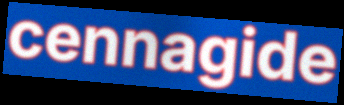
cennagide